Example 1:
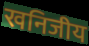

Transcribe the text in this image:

खनिजीय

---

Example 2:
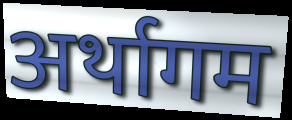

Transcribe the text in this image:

अर्थागम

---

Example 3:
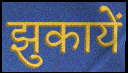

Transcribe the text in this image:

झुकायें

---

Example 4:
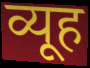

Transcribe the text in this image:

व्यूह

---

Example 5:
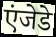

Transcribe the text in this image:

एंजेडे